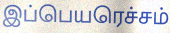
இப்பெயரெச்சம்